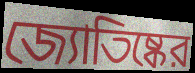
জ্যোতিষ্কের